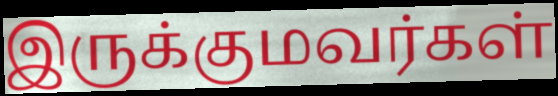
இருக்குமவர்கள்